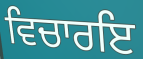
ਵਿਚਾਰਇ